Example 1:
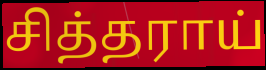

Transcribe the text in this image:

சித்தராய்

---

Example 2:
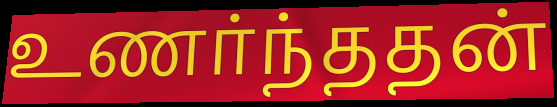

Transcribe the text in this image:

உணர்ந்ததன்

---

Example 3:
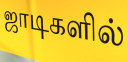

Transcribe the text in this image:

ஜாடிகளில்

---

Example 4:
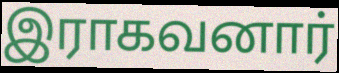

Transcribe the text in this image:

இராகவனார்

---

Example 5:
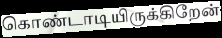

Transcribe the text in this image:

கொண்டாடியிருக்கிறேன்